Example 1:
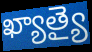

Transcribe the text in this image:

ఖ్యాత్యై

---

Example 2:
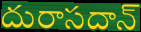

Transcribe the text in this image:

దురాసదాన్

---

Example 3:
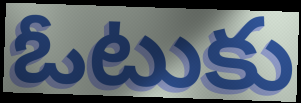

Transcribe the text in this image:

ఓటుకు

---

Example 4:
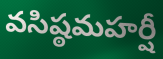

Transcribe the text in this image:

వసిష్ఠమహర్షీ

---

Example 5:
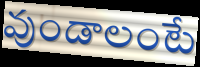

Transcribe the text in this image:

వుండాలంటే